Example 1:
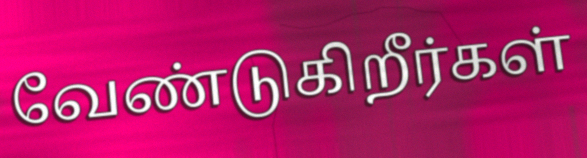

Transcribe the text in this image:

வேண்டுகிறீர்கள்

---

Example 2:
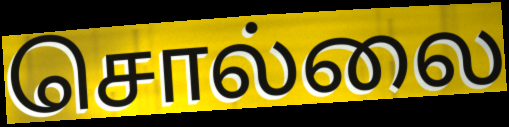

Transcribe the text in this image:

சொல்லை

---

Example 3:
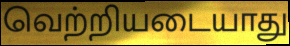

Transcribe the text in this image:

வெற்றியடையாது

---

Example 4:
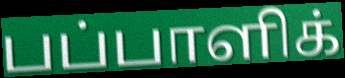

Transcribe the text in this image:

பப்பாளிக்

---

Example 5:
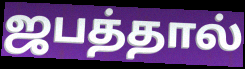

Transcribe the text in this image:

ஜபத்தால்